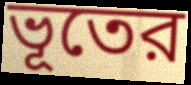
ভূতের